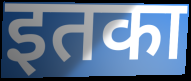
इतका